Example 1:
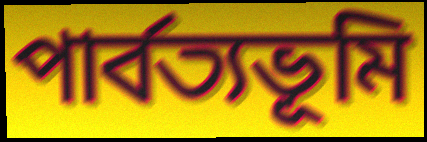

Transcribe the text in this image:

পার্বত্যভূমি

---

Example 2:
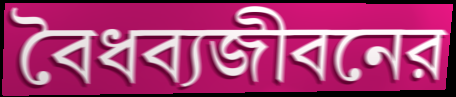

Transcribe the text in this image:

বৈধব্যজীবনের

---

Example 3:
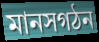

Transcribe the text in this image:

মানসগঠন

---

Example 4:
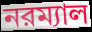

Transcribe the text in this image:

নরম্যাল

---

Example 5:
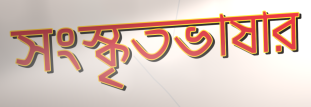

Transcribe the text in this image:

সংস্কৃতভাষার